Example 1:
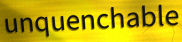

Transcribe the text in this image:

unquenchable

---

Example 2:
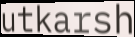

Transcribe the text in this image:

utkarsh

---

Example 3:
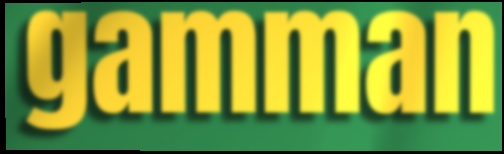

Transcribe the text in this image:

gamman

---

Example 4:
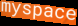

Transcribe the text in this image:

myspace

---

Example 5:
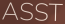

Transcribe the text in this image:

ASST